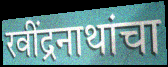
रवींद्रनाथांचा